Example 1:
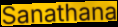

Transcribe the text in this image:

Sanathana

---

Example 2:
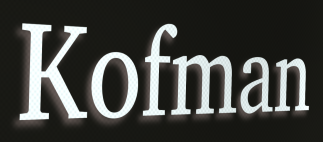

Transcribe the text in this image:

Kofman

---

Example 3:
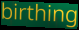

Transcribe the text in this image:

birthing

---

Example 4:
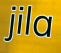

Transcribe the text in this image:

jila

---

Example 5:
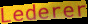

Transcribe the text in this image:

Lederer